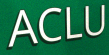
ACLU